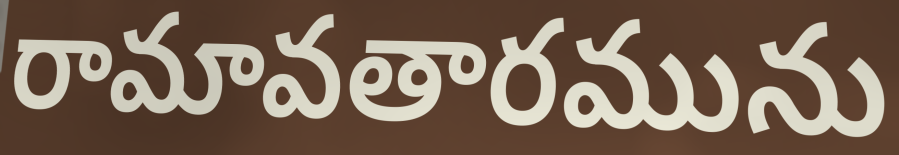
రామావతారమును